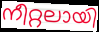
നീറ്റലായി